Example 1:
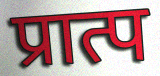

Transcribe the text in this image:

प्रात्प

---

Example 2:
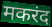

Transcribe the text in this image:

मकरंद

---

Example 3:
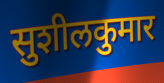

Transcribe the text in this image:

सुशीलकुमार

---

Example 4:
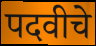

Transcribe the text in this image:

पदवीचे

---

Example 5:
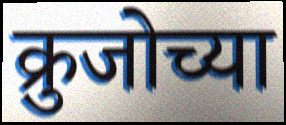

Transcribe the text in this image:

क्रुजोच्या